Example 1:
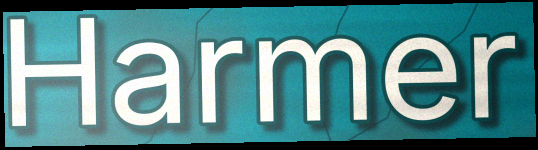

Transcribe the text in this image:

Harmer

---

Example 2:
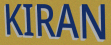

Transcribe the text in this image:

KIRAN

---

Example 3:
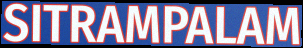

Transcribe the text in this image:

SITRAMPALAM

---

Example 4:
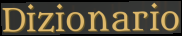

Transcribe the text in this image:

Dizionario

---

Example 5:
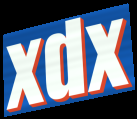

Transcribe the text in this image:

xdx